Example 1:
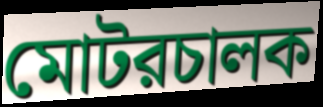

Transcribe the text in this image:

মোটরচালক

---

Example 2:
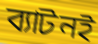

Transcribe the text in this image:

ব্যাটনই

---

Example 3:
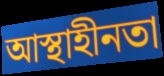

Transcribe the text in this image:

আস্থাহীনতা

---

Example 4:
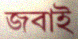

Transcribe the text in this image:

জবাই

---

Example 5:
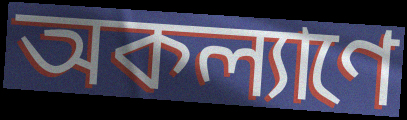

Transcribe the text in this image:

অকল্যাণে